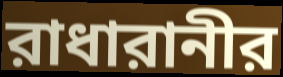
রাধারানীর